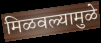
मिळवल्यामुळे